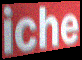
iche